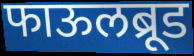
फाऊलब्रूड